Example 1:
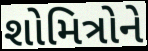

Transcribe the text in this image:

શોમિત્રોને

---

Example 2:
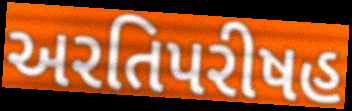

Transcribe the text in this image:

અરતિપરીષહ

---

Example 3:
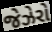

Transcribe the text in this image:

જેઝેરો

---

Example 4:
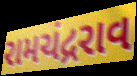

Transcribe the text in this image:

રામચંદ્રરાવ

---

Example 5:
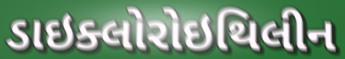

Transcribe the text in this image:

ડાઇક્લોરોઇથિલીન